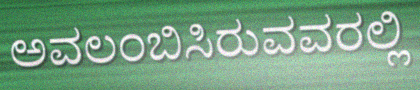
ಅವಲಂಬಿಸಿರುವವರಲ್ಲಿ